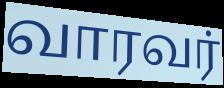
வாரவர்